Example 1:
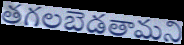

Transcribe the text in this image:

తగలబెడతామని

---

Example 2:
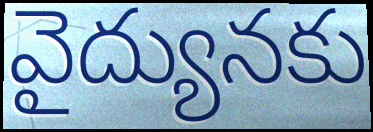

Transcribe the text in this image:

వైద్యునకు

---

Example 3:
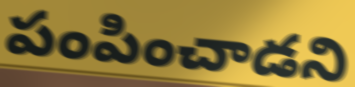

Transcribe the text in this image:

పంపించాడని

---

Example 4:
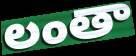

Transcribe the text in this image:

లంతా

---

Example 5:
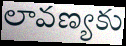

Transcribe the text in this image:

లావణ్యకు